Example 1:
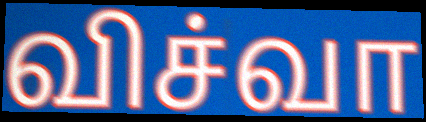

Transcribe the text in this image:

விச்வா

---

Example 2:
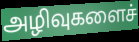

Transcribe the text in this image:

அழிவுகளைச்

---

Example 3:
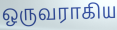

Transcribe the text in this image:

ஒருவராகிய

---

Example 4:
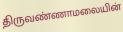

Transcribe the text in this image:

திருவண்ணாமலையின்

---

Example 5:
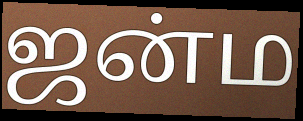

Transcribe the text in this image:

ஜன்ம